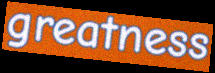
greatness